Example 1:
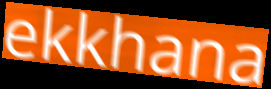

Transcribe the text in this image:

ekkhana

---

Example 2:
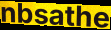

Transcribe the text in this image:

nbsathe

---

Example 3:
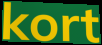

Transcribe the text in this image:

kort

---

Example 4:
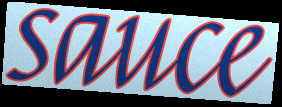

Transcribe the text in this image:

sauce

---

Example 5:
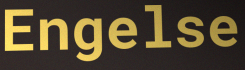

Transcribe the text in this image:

Engelse